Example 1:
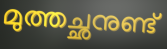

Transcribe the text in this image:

മുത്തച്ഛനുണ്ട്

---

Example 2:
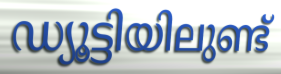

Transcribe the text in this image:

ഡ്യൂട്ടിയിലുണ്ട്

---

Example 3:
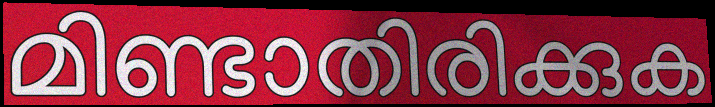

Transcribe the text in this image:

മിണ്ടാതിരിക്കുക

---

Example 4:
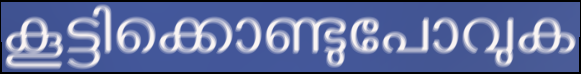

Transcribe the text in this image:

കൂട്ടിക്കൊണ്ടുപോവുക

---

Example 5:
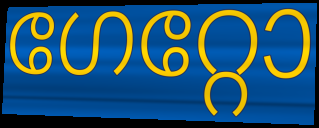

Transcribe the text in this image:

ഗേറ്റോ